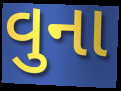
વુના